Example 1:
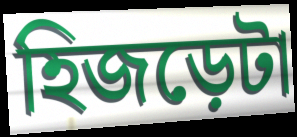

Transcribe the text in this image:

হিজড়েটা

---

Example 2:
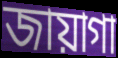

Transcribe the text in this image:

জায়াগা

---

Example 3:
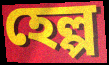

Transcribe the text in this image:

হেল্প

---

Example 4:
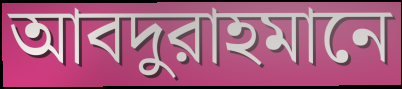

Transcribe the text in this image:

আবদুরাহমানে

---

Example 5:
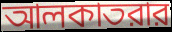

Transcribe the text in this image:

আলকাতরার